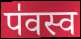
प॑वस्व